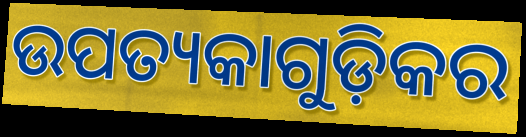
ଉପତ୍ୟକାଗୁଡ଼ିକର